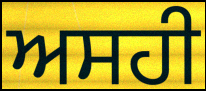
ਅਸਹੀ